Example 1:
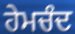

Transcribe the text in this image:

ਹੇਮਚੰਦ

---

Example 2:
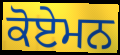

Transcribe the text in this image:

ਕੋਏਮਨ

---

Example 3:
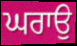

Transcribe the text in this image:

ਘਰਾਉ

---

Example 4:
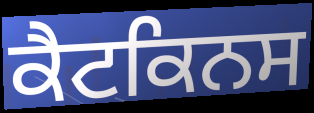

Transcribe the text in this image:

ਕੈਟਕਿਨਸ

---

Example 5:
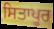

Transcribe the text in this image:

ਸਿਤਾਪੂਰ